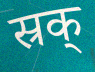
स्रक्